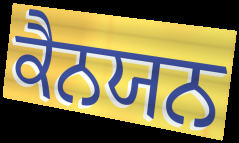
ਕੈਨਯਨ